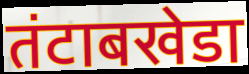
तंटाबखेडा